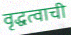
वृद्धत्वाची